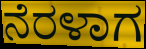
ನೆರಳಾಗ